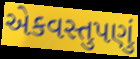
એકવસ્તુપણું